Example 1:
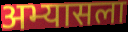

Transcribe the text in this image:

अभ्यासला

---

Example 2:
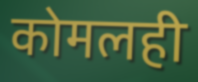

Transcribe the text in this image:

कोमलही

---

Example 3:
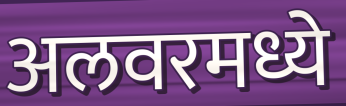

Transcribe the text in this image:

अलवरमध्ये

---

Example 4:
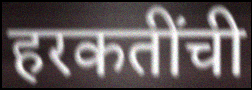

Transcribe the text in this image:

हरकतींची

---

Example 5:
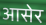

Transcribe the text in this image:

आसेर